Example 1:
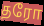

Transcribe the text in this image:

தரோ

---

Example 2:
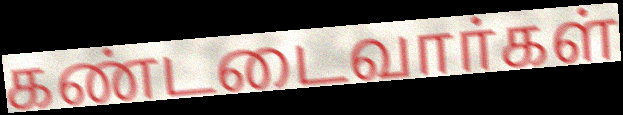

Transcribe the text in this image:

கண்டடைவார்கள்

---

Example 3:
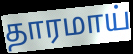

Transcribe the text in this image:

தாரமாய்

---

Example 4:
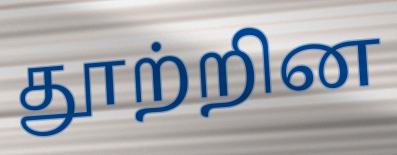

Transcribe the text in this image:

தூற்றின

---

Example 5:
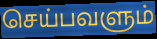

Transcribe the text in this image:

செய்பவளும்